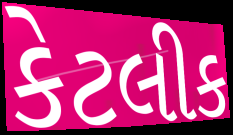
કેટલીક